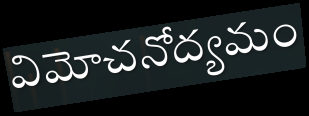
విమోచనోద్యమం